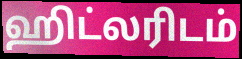
ஹிட்லரிடம்